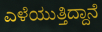
ಎಳೆಯುತ್ತಿದ್ದಾನೆ